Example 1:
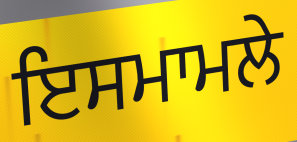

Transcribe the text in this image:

ਇਸਮਾਮਲੇ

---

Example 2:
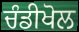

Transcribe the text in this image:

ਚੰਡੀਖੋਲ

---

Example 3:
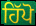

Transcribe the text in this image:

ਹਿੱਪੋ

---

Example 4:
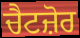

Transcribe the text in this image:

ਚੈਟਜ਼ੋਰ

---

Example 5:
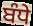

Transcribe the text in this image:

ਬੰਧੇ